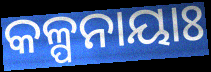
କଳ୍ପନାୟାଃ